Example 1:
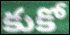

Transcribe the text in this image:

కుకో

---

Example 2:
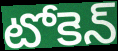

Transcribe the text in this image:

టోకెన్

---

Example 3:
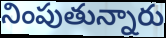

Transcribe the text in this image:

నింపుతున్నారు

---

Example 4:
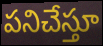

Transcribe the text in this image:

పనిచేస్తూ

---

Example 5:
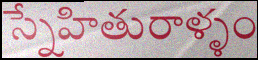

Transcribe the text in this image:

స్నేహితురాళ్ళం